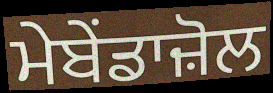
ਮੇਬੇਂਡਾਜ਼ੋਲ